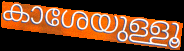
കാശേയുള്ളൂ